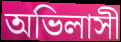
অভিলাসী